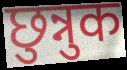
छुन्नुक